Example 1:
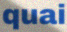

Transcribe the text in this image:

quai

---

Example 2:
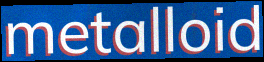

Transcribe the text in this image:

metalloid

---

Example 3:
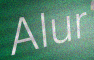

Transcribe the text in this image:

Alur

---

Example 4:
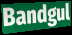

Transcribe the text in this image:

Bandgul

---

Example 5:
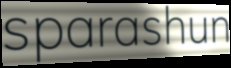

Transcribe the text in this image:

sparashun